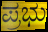
ಪ್ರಭು